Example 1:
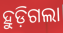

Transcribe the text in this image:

ହୁଡ଼ିଗଲା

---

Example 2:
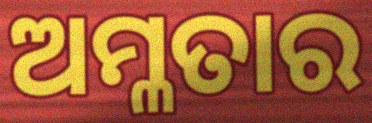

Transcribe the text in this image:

ଅମ୍ଳତାର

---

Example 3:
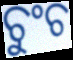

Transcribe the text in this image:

ଚୁଂଚ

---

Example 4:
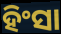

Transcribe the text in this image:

ହିଂସା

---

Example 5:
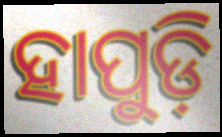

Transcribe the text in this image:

ହାପୁଡ଼ି